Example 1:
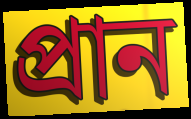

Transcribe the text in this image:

প্ৰান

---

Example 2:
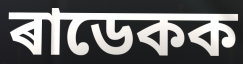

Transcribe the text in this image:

ৰাডেকক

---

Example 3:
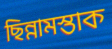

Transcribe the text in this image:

ছিন্নামস্তাক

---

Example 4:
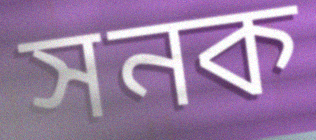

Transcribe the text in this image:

সনক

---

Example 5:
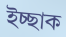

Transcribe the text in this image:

ইচ্ছাক